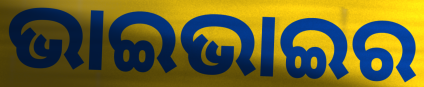
ଭାଇଭାଇର